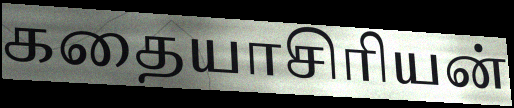
கதையாசிரியன்